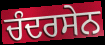
ਚੰਦਰਸੇਨ